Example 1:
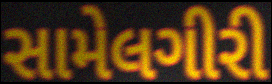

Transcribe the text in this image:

સામેલગીરી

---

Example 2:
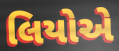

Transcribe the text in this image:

લિયોએ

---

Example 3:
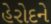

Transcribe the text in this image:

હેરોદને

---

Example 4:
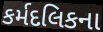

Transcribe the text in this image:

કર્મદલિકના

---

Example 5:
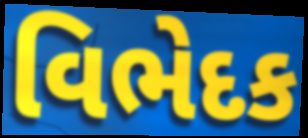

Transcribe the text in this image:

વિભેદક